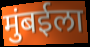
मुंबईला